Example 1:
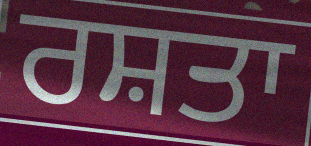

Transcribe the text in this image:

ਰਸ਼ਤਾ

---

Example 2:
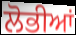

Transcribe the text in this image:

ਲੋਭੀਆਂ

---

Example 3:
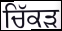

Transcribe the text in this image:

ਚਿੱਕੜ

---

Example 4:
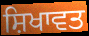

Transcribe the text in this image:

ਸ਼ਿਖਾਵਤ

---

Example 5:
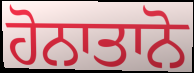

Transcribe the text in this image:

ਹੋਨਾਤਾਨੋ